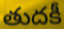
తుదకీ